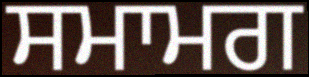
ਸਮਾਮਗ